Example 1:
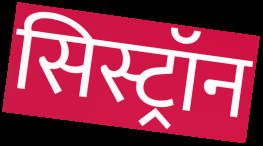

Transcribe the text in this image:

सिस्ट्रॉन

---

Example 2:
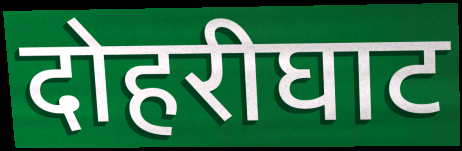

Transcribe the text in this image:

दोहरीघाट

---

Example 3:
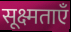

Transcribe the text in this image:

सूक्ष्मताएँ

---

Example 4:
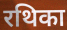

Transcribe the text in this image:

रथिका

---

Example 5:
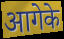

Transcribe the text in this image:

आगेके